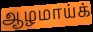
ஆழமாய்க்